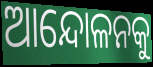
ଆନ୍ଦୋଳନକୁ